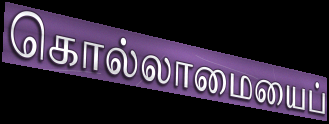
கொல்லாமையைப்